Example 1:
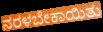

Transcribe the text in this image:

ನರಳಬೇಕಾಯಿತು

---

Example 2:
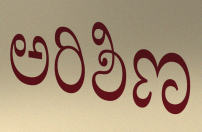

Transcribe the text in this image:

ಅರಿಶಿಣ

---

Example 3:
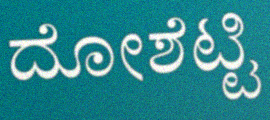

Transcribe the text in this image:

ದೋಶೆಟ್ಟಿ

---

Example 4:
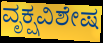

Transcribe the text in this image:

ವೃಕ್ಷವಿಶೇಷ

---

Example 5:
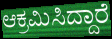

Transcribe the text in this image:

ಆಕ್ರಮಿಸಿದ್ದಾರೆ